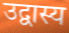
उद्वास्य